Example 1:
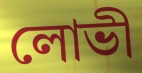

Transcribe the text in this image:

লোভী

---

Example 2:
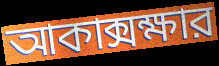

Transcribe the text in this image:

আকাক্সক্ষার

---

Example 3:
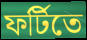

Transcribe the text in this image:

ফর্টিতে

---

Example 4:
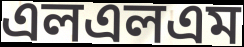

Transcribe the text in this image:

এলএলএম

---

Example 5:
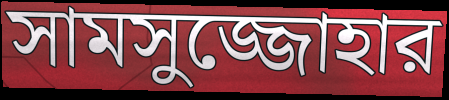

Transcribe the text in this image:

সামসুজ্জোহার